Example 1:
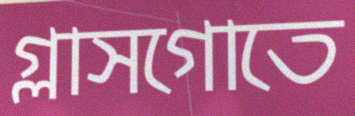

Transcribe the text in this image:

গ্লাসগোতে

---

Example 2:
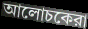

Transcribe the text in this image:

আলোচকেরা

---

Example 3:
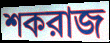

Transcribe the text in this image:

শকরাজ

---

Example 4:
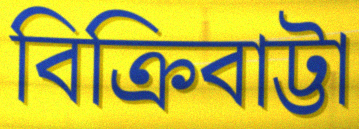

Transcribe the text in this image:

বিক্রিবাট্টা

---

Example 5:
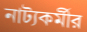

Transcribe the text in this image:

নাট্যকর্মীর